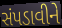
સંપડાવીને